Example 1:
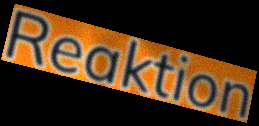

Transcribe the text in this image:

Reaktion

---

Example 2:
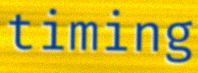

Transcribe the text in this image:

timing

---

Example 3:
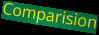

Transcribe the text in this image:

Comparision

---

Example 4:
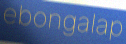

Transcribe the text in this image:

ebongalap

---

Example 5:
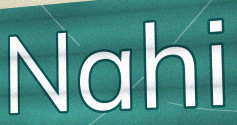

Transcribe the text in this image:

Nahi